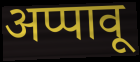
अप्पावू